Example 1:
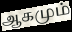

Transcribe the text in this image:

ஆகமும்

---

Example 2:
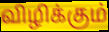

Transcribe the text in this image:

விழிக்கும்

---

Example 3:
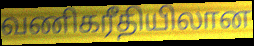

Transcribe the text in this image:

வணிகரீதியிலான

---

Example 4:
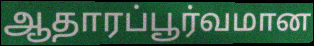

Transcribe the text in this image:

ஆதாரப்பூர்வமான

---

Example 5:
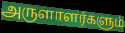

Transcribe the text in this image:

அருளாளர்களும்